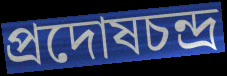
প্রদোষচন্দ্র